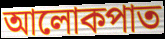
আলোকপাত